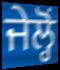
ਜੇਲ੍ਹੋਂ